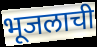
भूजलाची